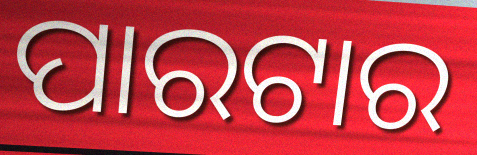
ପାରଟାର